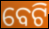
ବେଟି